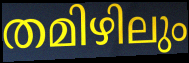
തമിഴിലും